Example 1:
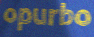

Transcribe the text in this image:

opurbo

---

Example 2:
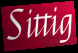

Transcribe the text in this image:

Sittig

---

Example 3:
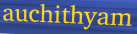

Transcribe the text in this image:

auchithyam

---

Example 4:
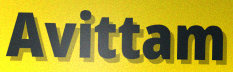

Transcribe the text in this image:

Avittam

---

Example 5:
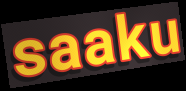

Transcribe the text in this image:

saaku